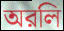
অরলি